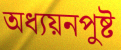
অধ্যয়নপুষ্ট